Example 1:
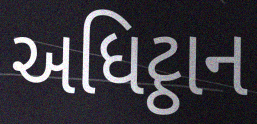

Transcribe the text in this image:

અધિટ્ઠાન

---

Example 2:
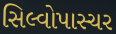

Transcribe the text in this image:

સિલ્વોપાસ્ચર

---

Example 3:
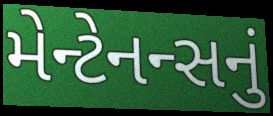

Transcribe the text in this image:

મેન્ટેનન્સનું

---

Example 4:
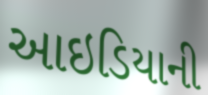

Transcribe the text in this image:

આઇડિયાની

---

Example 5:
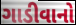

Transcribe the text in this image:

ગાડીવાનો